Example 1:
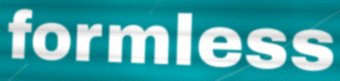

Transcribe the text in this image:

formless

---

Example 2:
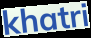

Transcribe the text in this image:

khatri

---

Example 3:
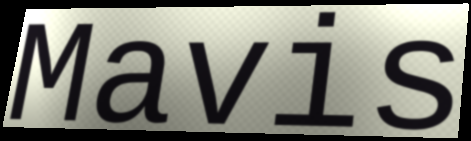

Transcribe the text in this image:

Mavis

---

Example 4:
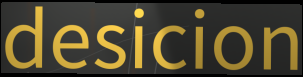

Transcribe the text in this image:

desicion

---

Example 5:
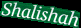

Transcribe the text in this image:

Shalishah